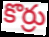
కొర్రు